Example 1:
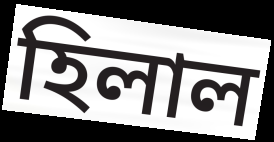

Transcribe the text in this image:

হিলাল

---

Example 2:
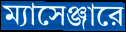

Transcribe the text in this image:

ম্যাসেঞ্জারে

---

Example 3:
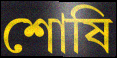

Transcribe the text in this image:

শোষি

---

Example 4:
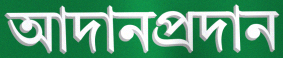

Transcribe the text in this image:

আদানপ্রদান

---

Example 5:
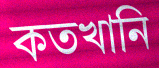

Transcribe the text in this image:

কতখানি